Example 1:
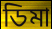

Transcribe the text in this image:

ডিমা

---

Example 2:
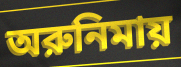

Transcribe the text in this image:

অরুনিমায়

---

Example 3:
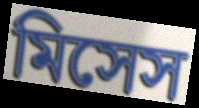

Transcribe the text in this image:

মিসেস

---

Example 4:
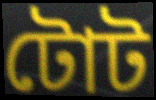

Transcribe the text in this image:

টোট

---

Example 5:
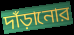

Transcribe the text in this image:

দাঁড়ানোর